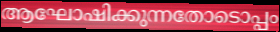
ആഘോഷിക്കുന്നതോടൊപ്പം